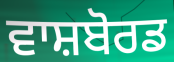
ਵਾਸ਼ਬੋਰਡ